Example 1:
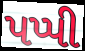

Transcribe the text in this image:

પપ્પી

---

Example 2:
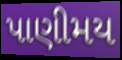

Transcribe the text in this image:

પાણીમય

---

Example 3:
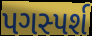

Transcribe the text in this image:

પગસ્પર્શ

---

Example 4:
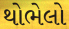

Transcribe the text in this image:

થોભેલો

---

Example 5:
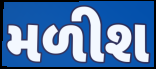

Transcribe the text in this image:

મળીશ